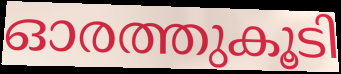
ഓരത്തുകൂടി